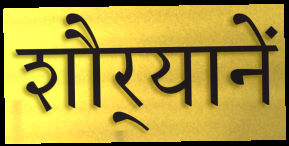
शौर्यानें